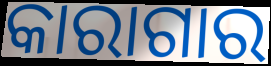
କାରାଗାର